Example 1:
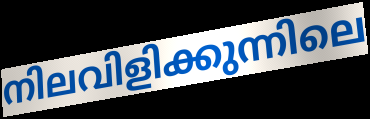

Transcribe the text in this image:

നിലവിളിക്കുന്നിലെ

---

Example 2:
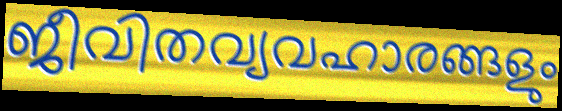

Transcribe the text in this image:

ജീവിതവ്യവഹാരങ്ങളും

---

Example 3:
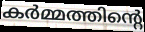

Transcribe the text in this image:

കർമ്മത്തിന്റെ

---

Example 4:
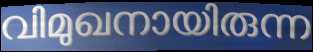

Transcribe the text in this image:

വിമുഖനായിരുന്ന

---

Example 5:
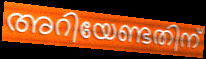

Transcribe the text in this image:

അറിയേണ്ടതിന്